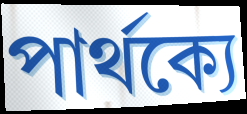
পার্থক্যে